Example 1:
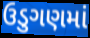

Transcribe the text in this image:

ઉડુગણમાં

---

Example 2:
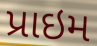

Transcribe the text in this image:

પ્રાઇમ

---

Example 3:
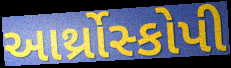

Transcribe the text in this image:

આર્થ્રોસ્કોપી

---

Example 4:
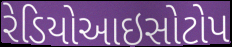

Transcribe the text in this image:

રેડિયોઆઇસોટોપ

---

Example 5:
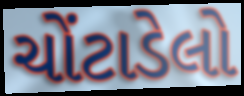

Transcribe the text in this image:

ચોંટાડેલો